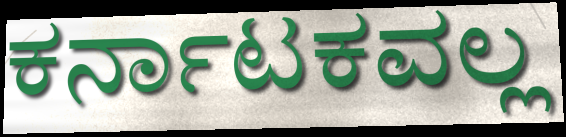
ಕರ್ನಾಟಕವಲ್ಲ